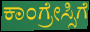
ಕಾಂಗ್ರೇಸ್ಸಿಗೆ